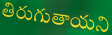
తిరుగుతాయని